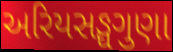
અરિયસઙ્ઘગુણા